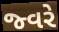
જ્વરે